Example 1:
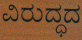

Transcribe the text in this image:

ವಿರುದ್ಧದ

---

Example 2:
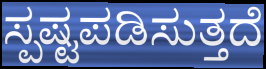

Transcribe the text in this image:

ಸ್ಪಷ್ಟಪಡಿಸುತ್ತದೆ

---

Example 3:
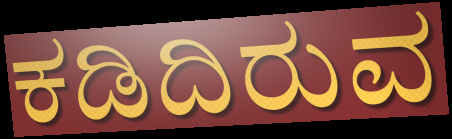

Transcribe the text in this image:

ಕಡಿದಿರುವ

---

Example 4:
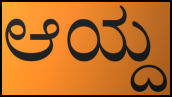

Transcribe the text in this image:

ಆಯ್ದ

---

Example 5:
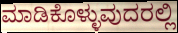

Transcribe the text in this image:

ಮಾಡಿಕೊಳ್ಳುವುದರಲ್ಲಿ